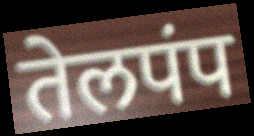
तेलपंप